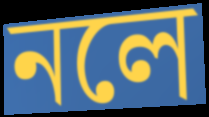
নলে